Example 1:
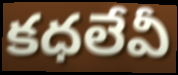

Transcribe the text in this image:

కధలేవీ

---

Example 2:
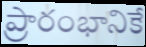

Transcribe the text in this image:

ప్రారంభానికే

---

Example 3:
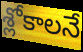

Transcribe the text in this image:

శ్లోకాలనే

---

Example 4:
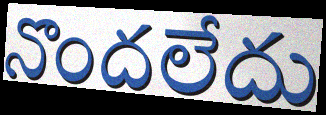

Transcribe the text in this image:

నొందలేదు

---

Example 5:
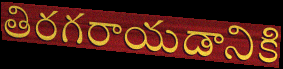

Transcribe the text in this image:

తిరగరాయడానికి